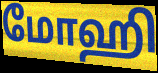
மோஹி